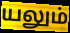
யலும்